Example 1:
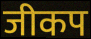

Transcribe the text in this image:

जीकप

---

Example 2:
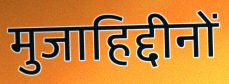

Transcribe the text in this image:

मुजाहिद्दीनों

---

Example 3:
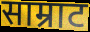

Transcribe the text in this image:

साम्राट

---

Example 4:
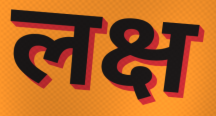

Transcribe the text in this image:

लक्ष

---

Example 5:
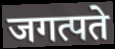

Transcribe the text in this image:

जगत्पते